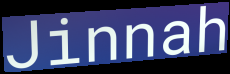
Jinnah